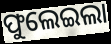
ଫୁଲେଇଲା